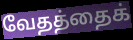
வேதத்தைக்